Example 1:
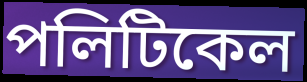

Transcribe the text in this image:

পলিটিকেল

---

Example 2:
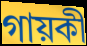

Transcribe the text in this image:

গায়কী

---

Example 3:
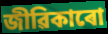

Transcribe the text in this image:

জীৱিকাৰো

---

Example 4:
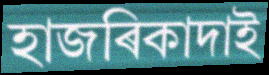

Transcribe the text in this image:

হাজৰিকাদাই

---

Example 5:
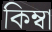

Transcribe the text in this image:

কিম্বা